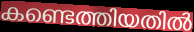
കണ്ടെത്തിയതിൽ